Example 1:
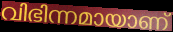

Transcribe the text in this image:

വിഭിന്നമായാണ്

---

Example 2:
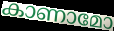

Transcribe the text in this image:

കാണാമോ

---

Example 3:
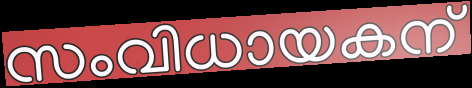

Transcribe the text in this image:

സംവിധായകന്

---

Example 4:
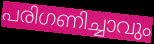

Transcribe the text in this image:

പരിഗണിച്ചാവും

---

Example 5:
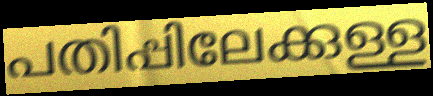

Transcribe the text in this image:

പതിപ്പിലേക്കുള്ള